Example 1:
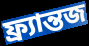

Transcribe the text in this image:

ফ্র্যান্তজ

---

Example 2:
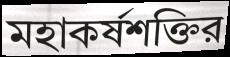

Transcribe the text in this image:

মহাকর্ষশক্তির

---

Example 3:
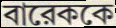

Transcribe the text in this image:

বারেককে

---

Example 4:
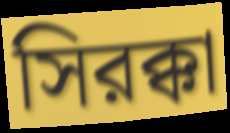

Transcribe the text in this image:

সিরক্কা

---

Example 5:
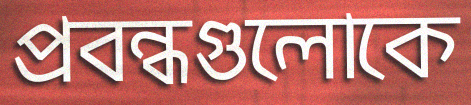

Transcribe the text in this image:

প্রবন্ধগুলোকে